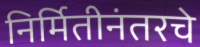
निर्मितीनंतरचे